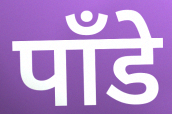
पाँडे